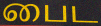
பைட